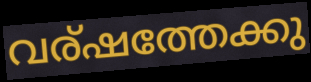
വര്ഷത്തേക്കു